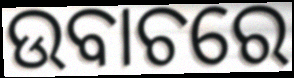
ଉବାଚରେ